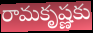
రామకృష్ణకు